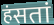
हंसतां